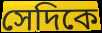
সেদিকে